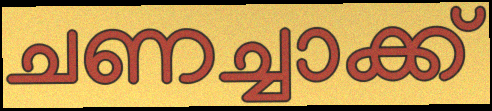
ചണച്ചാക്ക്